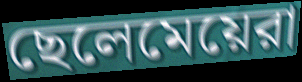
ছেলেমেয়েরা